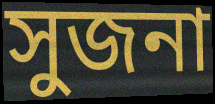
সুজনা